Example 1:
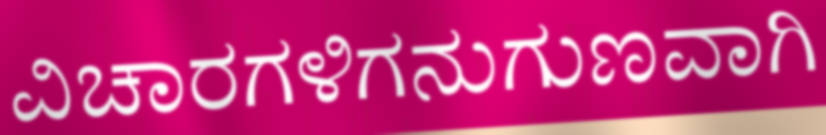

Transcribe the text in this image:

ವಿಚಾರಗಳಿಗನುಗುಣವಾಗಿ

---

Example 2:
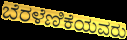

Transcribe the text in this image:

ಬೆರಳೆಣಿಕೆಯವರು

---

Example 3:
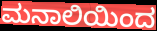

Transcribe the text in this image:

ಮನಾಲಿಯಿಂದ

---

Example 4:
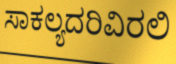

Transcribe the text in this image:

ಸಾಕಲ್ಯದರಿವಿರಲಿ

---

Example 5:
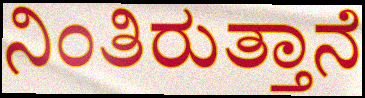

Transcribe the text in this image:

ನಿಂತಿರುತ್ತಾನೆ